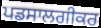
ਪਡਸਾਲਗੀਕਰ